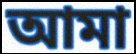
আমা